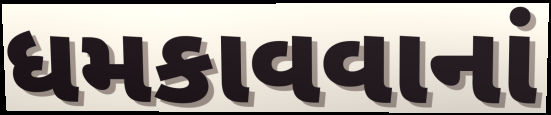
ધમકાવવાનાં